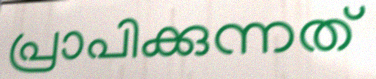
പ്രാപിക്കുന്നത്